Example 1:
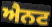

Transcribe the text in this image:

ਐਨਟ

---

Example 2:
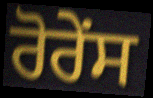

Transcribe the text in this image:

ਰੋਰੇਂਸ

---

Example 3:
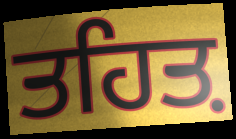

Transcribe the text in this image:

ਤਹਿਤ਼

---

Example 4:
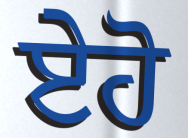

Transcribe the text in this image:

ਏਹੋ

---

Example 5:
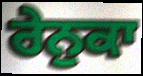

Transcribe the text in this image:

ਰੇਨੁਕਾ